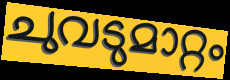
ചുവടുമാറ്റം